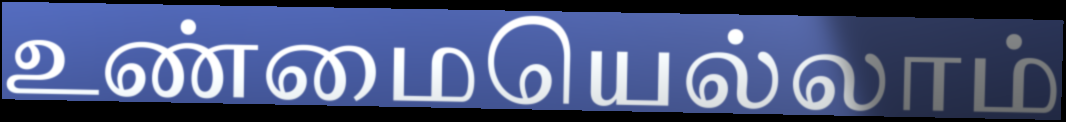
உண்மையெல்லாம்